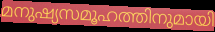
മനുഷ്യസമൂഹത്തിനുമായി